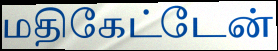
மதிகேட்டேன்